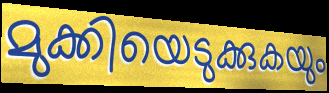
മുക്കിയെടുക്കുകയും